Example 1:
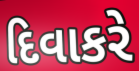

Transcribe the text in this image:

દિવાકરે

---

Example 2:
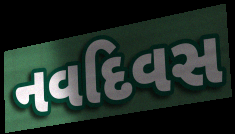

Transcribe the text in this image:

નવદિવસ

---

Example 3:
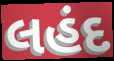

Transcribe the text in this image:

લહંદ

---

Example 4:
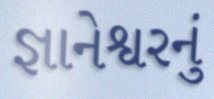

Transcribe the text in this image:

જ્ઞાનેશ્વરનું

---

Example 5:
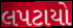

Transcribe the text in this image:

લપટાયો